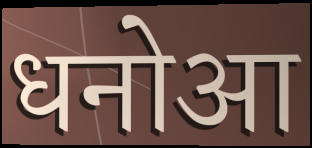
धनोआ